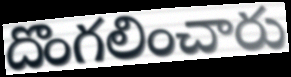
దొంగలించారు